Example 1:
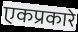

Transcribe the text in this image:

एकप्रकारे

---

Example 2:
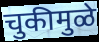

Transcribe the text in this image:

चुकीमुळे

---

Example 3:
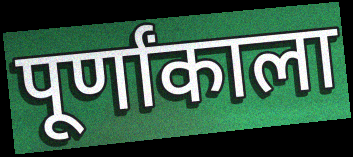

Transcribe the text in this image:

पूर्णांकाला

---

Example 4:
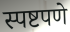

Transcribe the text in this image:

स्पष्टपणे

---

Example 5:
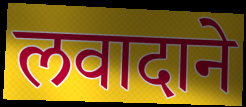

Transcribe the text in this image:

लवादाने